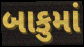
બાકુમાં